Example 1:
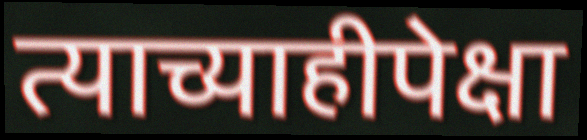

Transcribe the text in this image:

त्याच्याहीपेक्षा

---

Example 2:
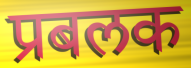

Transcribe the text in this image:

प्रबलक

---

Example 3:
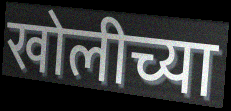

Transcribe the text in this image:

खोलीच्या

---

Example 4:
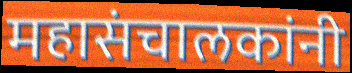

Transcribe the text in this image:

महासंचालकांनी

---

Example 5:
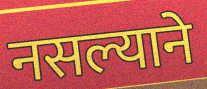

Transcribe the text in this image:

नसल्‍याने